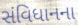
સંવિધાનના